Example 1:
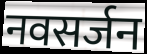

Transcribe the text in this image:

नवसर्जन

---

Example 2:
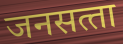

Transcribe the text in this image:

जनसत्‍ता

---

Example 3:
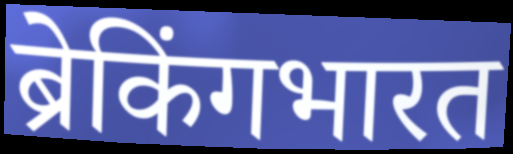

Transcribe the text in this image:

ब्रेकिंगभारत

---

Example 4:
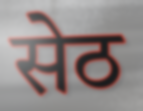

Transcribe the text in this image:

सेठ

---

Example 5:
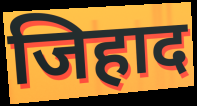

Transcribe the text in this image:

जिहाद